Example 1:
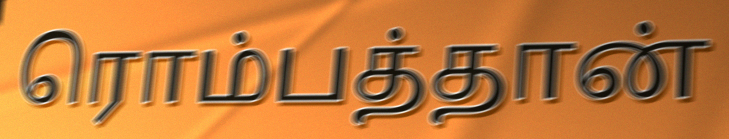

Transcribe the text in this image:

ரொம்பத்தான்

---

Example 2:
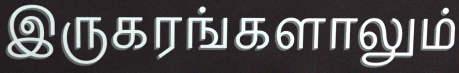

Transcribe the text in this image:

இருகரங்களாலும்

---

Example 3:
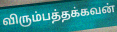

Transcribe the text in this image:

விரும்பத்தக்கவன்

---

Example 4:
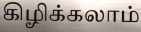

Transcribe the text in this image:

கிழிக்கலாம்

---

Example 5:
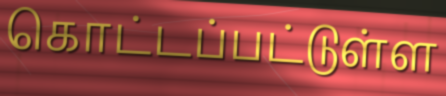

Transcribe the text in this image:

கொட்டப்பட்டுள்ள